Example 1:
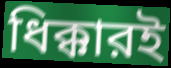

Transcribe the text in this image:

ধিক্কারই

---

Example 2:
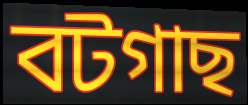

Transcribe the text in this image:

বটগাছ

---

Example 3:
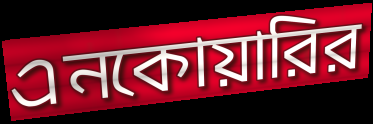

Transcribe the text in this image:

এনকোয়ারির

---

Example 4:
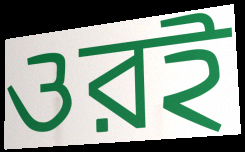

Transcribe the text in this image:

ওরই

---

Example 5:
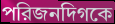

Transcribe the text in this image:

পরিজনদিগকে